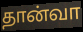
தான்வா